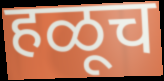
हळूच